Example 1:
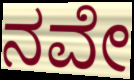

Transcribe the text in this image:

ನವೇ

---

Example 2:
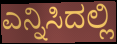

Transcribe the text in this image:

ಎನ್ನಿಸಿದಲ್ಲಿ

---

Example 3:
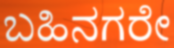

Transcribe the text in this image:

ಬಹಿನಗರೇ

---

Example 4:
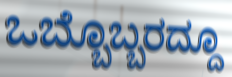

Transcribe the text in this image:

ಒಬ್ಬೊಬ್ಬರದ್ದೂ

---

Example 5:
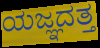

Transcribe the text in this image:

ಯಜ್ಞದತ್ತ